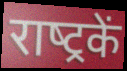
राष्ट्रकें